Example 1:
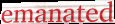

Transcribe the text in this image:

emanated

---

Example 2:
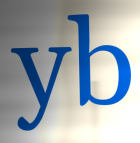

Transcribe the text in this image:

yb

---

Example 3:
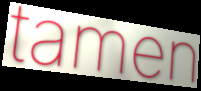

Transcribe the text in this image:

tamen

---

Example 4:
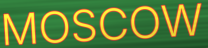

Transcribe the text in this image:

MOSCOW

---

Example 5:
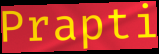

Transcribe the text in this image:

Prapti